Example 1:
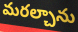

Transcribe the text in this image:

మరల్చాను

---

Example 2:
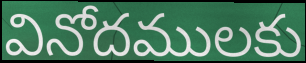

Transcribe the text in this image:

వినోదములకు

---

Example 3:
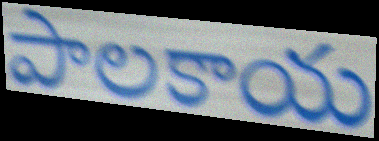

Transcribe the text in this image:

పాలకాయ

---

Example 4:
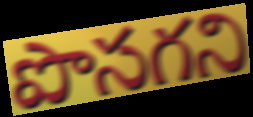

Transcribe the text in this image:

పొసగని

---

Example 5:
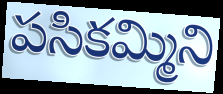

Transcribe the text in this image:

పసికమ్మిని